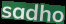
sadho